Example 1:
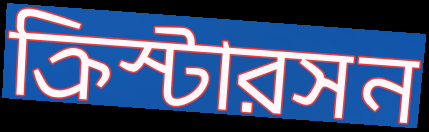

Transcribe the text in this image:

ক্রিস্টারসন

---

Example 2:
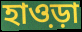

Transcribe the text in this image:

হাও়ড়া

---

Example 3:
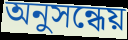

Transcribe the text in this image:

অনুসন্ধেয়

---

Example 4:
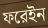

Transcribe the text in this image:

ফরেইন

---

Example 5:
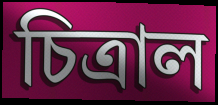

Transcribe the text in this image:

চিত্রাল